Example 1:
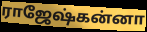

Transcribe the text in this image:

ராஜேஷ்கன்னா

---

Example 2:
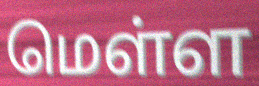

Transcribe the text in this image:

மெள்ள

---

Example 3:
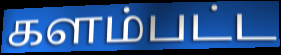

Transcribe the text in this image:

களம்பட்ட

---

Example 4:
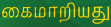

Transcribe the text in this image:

கைமாறியது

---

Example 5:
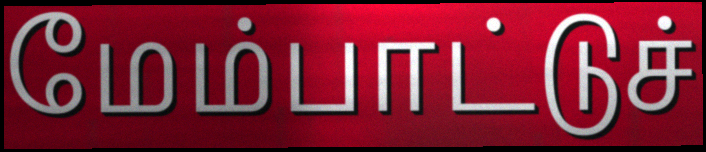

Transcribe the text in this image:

மேம்பாட்டுச்